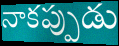
నాకప్పుడు